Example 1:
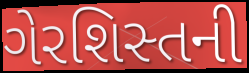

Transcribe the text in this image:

ગેરશિસ્તની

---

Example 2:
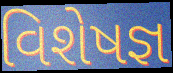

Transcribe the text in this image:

વિશેષજ્ઞ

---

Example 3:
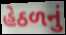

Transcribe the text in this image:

હેઠળનું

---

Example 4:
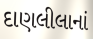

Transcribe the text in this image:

દાણલીલાનાં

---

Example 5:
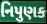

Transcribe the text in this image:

નિપુણક